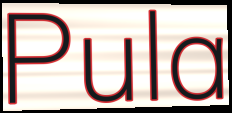
Pula